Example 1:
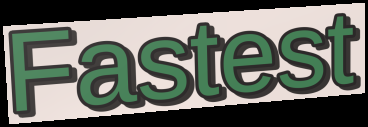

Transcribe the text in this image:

Fastest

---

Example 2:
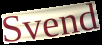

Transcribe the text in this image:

Svend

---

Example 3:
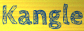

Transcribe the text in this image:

Kangle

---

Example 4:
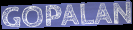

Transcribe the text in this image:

GOPALAN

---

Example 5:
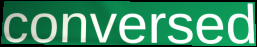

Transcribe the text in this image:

conversed